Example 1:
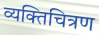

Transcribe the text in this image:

व्यक्तिचित्रण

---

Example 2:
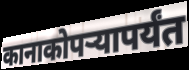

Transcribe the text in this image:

कानाकोपऱ्यापर्यंत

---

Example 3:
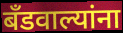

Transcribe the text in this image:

बँडवाल्यांना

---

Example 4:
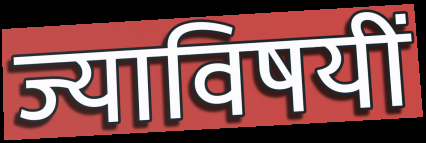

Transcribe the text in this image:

ज्याविषयीं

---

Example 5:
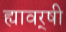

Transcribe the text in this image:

ह्यावर्षी